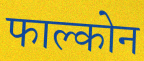
फाल्कोन